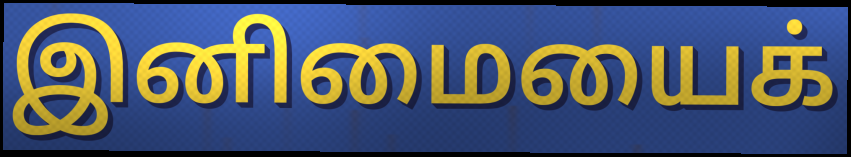
இனிமையைக்